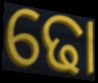
ଢୋ